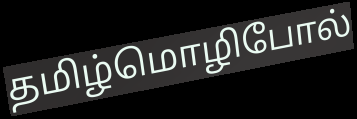
தமிழ்மொழிபோல்